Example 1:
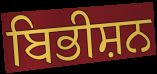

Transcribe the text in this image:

ਬਿਭੀਸ਼ਨ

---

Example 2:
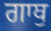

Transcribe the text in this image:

ਗਾਥੁ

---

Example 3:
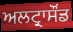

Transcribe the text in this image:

ਅਲਟ੍ਰਾਸੌਂਡ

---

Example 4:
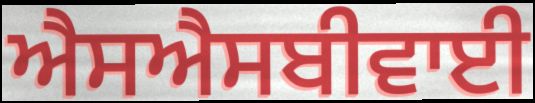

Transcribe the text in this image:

ਐਸਐਸਬੀਵਾਈ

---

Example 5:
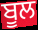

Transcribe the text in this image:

ਬੂਲ